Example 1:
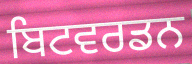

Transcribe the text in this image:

ਬਿਟਵਰਡਨ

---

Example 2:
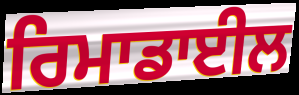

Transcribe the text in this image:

ਰਿਮਾਡਾਈਲ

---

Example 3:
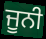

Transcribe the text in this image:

ਜੂਨੀ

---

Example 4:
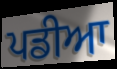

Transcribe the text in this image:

ਪਡੀਆ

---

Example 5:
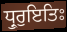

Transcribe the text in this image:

ਧ੍ਰੁਰੁਇਤਿਃ